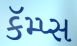
કૅમ્પ્સ